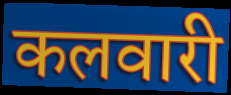
कलवारी